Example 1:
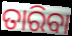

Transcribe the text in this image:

ତାରିବା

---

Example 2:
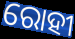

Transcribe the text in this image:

ରୋହୀ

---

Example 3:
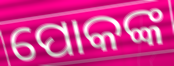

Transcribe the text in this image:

ପୋକଙ୍କ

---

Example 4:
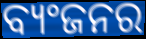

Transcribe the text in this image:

ବ୍ୟଂଜନର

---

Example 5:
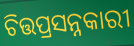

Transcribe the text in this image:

ଚିତ୍ତପ୍ରସନ୍ନକାରୀ